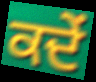
ਕਦੇਂ